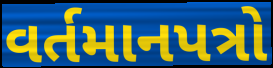
વર્તમાનપત્રો